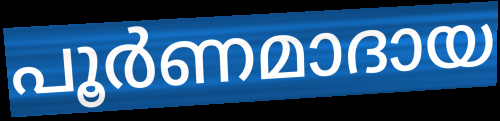
പൂർണമാദായ